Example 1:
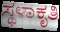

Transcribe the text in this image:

ಸ್ಥಳಾಕೃತಿ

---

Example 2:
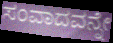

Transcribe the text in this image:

ಸಂವಾದವನ್ನೇ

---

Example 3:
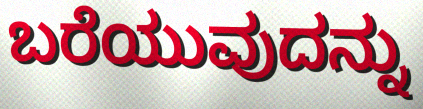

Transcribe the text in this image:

ಬರೆಯುವುದನ್ನು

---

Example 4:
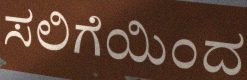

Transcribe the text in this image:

ಸಲಿಗೆಯಿಂದ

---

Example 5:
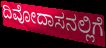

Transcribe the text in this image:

ದಿವೋದಾಸನಲ್ಲಿಗೆ